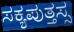
ಸಕ್ಯಪುತ್ತಸ್ಸ